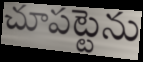
చూపట్టెను